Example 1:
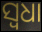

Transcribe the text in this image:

ସ୍ୱଧା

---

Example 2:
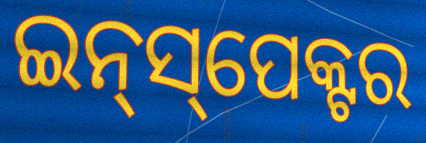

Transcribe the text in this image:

ଇନ୍‍ସ୍‌ପେକ୍ଟର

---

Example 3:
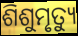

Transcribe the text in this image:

ଶିଶୁମୃତ୍ୟୁ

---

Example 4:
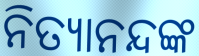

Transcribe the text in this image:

ନିତ୍ୟାନନ୍ଦଙ୍କ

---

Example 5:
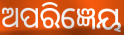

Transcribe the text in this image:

ଅପରିଜ୍ଞେୟ